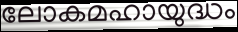
ലോകമഹായുദ്ധം